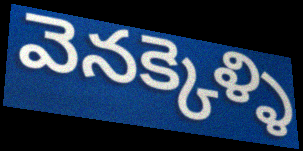
వెనక్కెళ్ళి